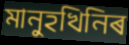
মানুহখিনিৰ